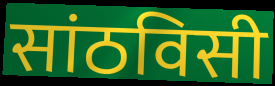
सांठविसी